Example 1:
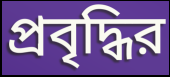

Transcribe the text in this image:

প্রবৃদ্ধির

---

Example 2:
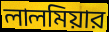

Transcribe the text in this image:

লালমিয়ার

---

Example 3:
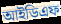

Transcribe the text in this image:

আইডিএফ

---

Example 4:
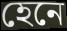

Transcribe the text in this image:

হেনে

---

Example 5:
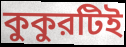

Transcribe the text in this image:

কুকুরটিই